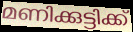
മണിക്കുട്ടിക്ക്